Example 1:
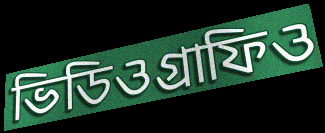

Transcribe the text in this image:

ভিডিওগ্রাফিও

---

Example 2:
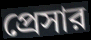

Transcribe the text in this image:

প্রেসার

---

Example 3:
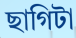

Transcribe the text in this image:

ছাগিটা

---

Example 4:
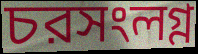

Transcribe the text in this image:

চরসংলগ্ন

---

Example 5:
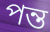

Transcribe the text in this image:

পন্ত